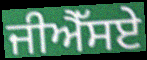
ਜੀਐੱਸਏ